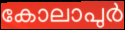
കോലാപുർ